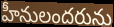
హీనులందరును